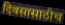
दिवसासाठीच